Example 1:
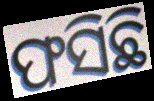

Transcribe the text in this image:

ଫସିଛି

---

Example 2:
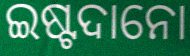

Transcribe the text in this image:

ଇଷ୍ଟଦାନୋ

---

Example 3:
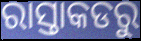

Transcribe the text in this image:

ରାସ୍ତାକଡରୁ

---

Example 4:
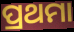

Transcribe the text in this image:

ପ୍ରଥମା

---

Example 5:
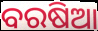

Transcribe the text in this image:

ବରଷିଆ